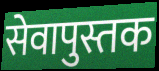
सेवापुस्तक